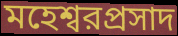
মহেশ্বরপ্রসাদ